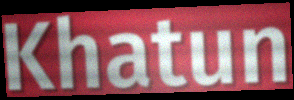
Khatun